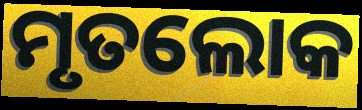
ମୃତଲୋକ